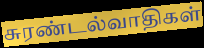
சுரண்டல்வாதிகள்